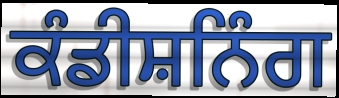
ਕੰਡੀਸ਼ਨਿੰਗ